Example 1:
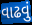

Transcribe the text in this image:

વાઢવું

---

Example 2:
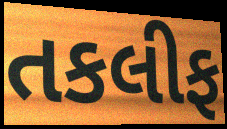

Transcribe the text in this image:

તકલીફ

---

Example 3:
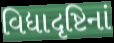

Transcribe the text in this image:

વિદ્યાદૃષ્ટિનાં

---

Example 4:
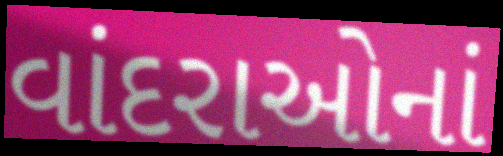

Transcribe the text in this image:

વાંદરાઓનાં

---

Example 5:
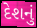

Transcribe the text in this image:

દેશનું